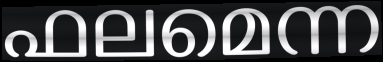
ഫലമെന്ന